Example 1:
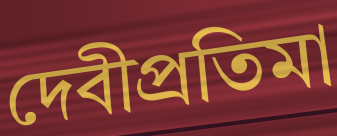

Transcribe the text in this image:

দেবীপ্রতিমা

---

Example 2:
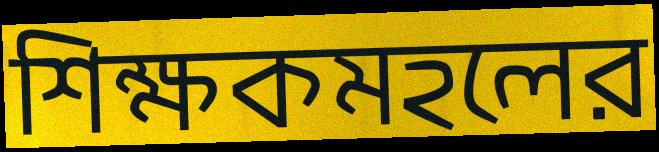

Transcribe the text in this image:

শিক্ষকমহলের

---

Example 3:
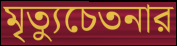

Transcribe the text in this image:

মৃত্যুচেতনার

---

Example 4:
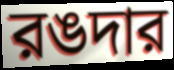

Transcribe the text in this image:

রঙদার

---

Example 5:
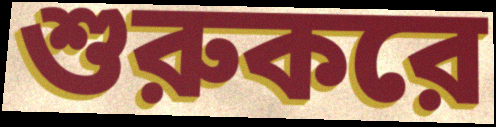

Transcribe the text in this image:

শুরুকরে